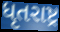
ધૃતરાષ્ટ્ર